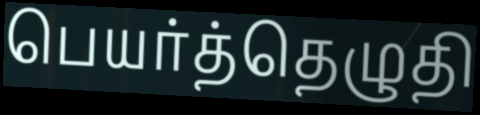
பெயர்த்தெழுதி